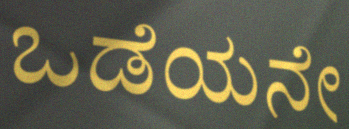
ಒಡೆಯನೇ